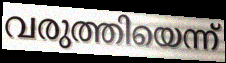
വരുത്തിയെന്ന്